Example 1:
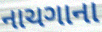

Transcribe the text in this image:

નાચગાના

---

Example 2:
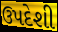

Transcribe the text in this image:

ઉપદેશી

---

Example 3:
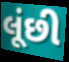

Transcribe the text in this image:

લૂંછી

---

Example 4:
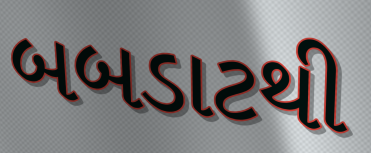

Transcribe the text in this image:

બબડાટથી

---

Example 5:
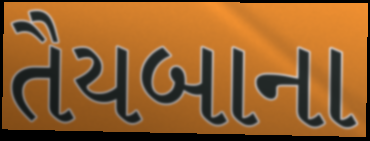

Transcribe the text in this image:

તૈયબાના